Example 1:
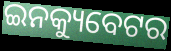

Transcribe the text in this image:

ଇନକ୍ୟୁବେଟର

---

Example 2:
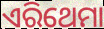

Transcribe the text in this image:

ଏରିଥେମା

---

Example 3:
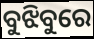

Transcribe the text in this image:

ବୁଝିବୁରେ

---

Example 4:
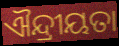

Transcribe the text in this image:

ଐନ୍ଦ୍ରୀୟତା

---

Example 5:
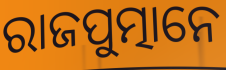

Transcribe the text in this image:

ରାଜପୁତ୍ମାନେ